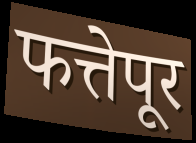
फत्तेपूर